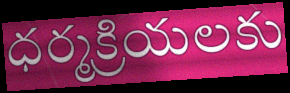
ధర్మక్రియలకు